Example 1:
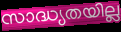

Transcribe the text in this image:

സാദ്ധ്യതയില്ല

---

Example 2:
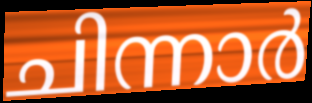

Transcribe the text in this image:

ചിന്നാർ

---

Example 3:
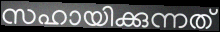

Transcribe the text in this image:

സഹായിക്കുന്നത്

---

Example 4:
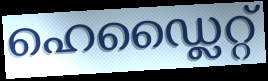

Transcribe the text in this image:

ഹെഡ്ലൈറ്റ്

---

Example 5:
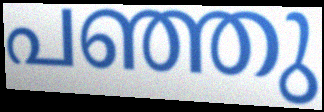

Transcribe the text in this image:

പഞ്ഞു